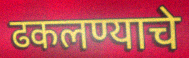
ढकलण्याचे